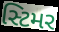
સ્ટિમર